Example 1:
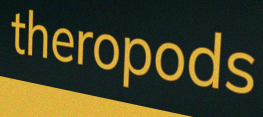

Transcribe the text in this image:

theropods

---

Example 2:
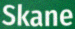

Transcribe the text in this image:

Skane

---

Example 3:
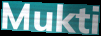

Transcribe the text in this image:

Mukti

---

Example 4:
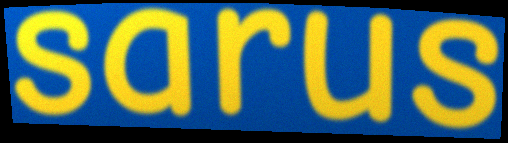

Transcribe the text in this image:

sarus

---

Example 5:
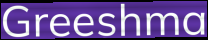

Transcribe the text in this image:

Greeshma